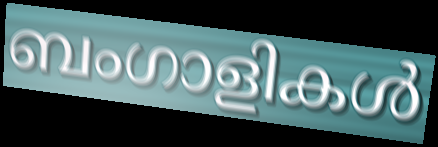
ബംഗാളികൾ